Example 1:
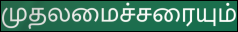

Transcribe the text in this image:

முதலமைச்சரையும்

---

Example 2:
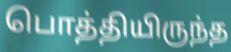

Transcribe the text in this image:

பொத்தியிருந்த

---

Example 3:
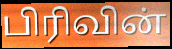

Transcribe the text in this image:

பிரிவின்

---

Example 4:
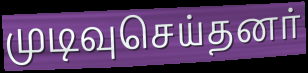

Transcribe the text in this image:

முடிவுசெய்தனர்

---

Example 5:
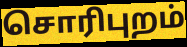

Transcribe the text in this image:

சொரிபுறம்